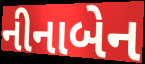
નીનાબેન